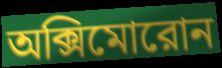
অক্সিমোরোন